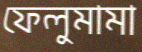
ফেলুমামা